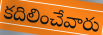
కదిలించేవారు